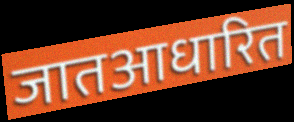
जातआधारित